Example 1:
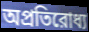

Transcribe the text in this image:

অপ্রতিরোধ্য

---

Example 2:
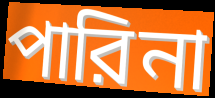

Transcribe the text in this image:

পারিনা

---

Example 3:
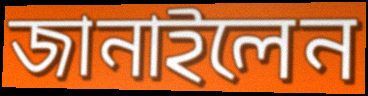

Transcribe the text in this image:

জানাইলেন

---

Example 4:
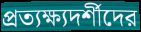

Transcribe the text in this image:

প্রত্যক্ষ্যদর্শীদের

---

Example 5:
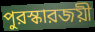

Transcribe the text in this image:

পুরস্কারজয়ী